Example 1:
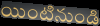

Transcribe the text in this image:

యింటినుండి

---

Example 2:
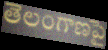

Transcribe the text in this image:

తెలంగాణపై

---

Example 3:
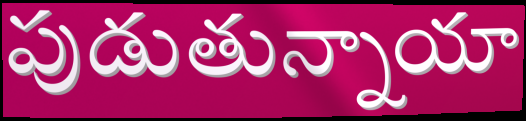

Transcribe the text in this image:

పుడుతున్నాయా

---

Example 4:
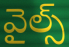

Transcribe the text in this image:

వైల్స్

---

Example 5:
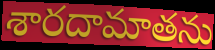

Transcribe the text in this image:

శారదామాతను